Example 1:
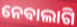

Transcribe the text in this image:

ନେବାଲାଗି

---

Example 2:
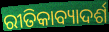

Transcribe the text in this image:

ରୀତିକାବ୍ୟାଦର୍ଶ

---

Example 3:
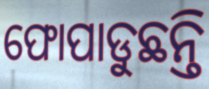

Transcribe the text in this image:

ଫୋପାଡୁଛନ୍ତି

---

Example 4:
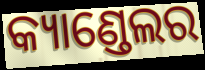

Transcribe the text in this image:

କ୍ୟାଣ୍ଡେଲର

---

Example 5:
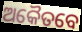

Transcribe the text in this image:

ଅକୈତବେ